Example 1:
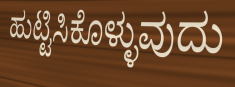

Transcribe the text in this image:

ಹುಟ್ಟಿಸಿಕೊಳ್ಳುವುದು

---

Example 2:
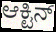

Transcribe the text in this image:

ಆಕ್ಟಿನ್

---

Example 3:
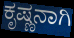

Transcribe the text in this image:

ಕೃಷ್ಣನಾಗಿ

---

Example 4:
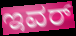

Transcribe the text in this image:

ಇವರ್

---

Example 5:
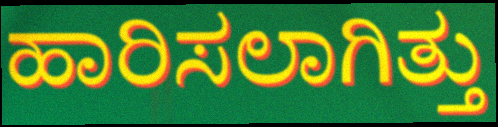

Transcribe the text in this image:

ಹಾರಿಸಲಾಗಿತ್ತು